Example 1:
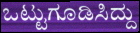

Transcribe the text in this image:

ಒಟ್ಟುಗೂಡಿಸಿದ್ದು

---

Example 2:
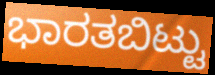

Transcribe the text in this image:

ಭಾರತಬಿಟ್ಟು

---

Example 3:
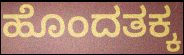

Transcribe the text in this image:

ಹೊಂದತಕ್ಕ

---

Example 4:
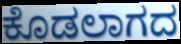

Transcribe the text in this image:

ಕೊಡಲಾಗದ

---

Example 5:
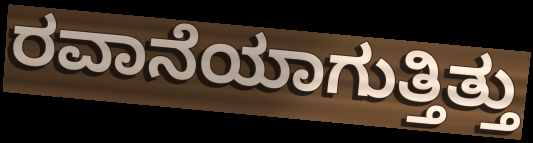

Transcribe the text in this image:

ರವಾನೆಯಾಗುತ್ತಿತ್ತು